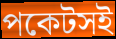
পকেটসই